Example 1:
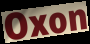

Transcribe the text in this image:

Oxon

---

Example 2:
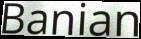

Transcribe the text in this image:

Banian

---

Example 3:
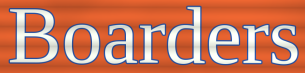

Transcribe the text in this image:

Boarders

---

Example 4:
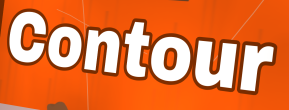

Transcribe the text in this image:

Contour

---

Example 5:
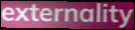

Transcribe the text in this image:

externality